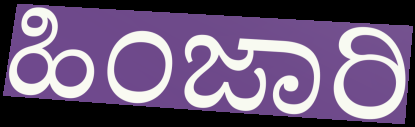
ಹಿಂಜಾರಿ